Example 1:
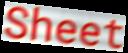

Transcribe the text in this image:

Sheet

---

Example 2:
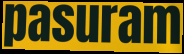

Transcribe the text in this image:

pasuram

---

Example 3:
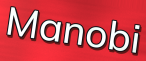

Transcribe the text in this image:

Manobi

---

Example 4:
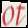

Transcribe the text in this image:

ot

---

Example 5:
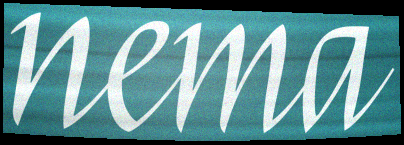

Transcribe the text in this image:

nema